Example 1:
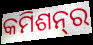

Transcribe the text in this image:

କମିଶନ୍‌ର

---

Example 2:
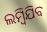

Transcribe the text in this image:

ଲମ୍ୱିଯିବ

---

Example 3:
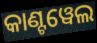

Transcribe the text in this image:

କାଣ୍ଟୱେଲ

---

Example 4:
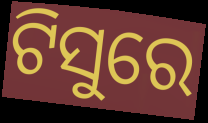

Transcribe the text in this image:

ଟିସୁରେ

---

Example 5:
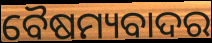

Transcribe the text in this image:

ବୈଷମ୍ୟବାଦର